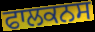
ਫਾਲਕਨਸ